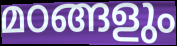
മഠങ്ങളും